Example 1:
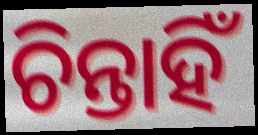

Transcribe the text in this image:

ଚିନ୍ତାହିଁ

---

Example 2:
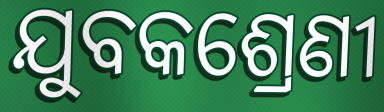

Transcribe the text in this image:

ଯୁବକଶ୍ରେଣୀ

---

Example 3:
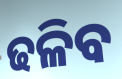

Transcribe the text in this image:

ଢଳିବ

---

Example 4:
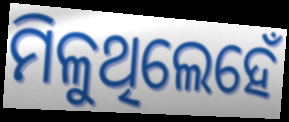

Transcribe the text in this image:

ମିଳୁଥିଲେହେଁ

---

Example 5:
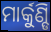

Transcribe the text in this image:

ମାର୍କୁଣ୍ଡି